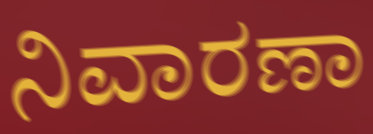
ನಿವಾರಣಾ